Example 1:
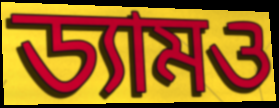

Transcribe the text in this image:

ড্যামও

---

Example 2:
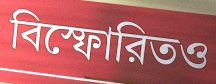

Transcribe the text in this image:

বিস্ফোরিতও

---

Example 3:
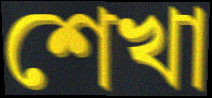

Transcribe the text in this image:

শেখা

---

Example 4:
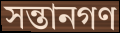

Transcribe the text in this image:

সন্তানগণ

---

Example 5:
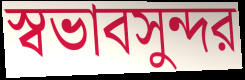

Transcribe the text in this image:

স্বভাবসুন্দর